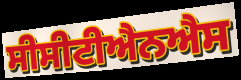
ਸੀਸੀਟੀਐਨਐਸ